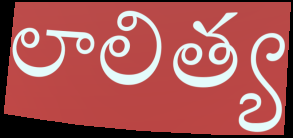
లాలిత్య